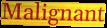
Malignant